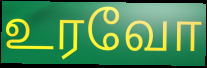
உரவோ